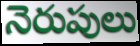
నెరుపులు